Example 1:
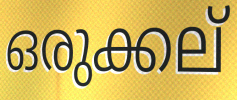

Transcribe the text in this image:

ഒരുക്കല്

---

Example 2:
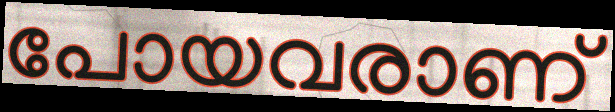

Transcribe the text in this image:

പോയവരാണ്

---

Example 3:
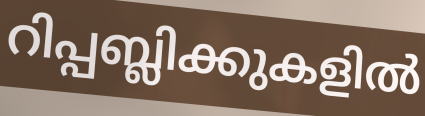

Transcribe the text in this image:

റിപ്പബ്ലിക്കുകളിൽ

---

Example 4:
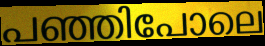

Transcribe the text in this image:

പഞ്ഞിപോലെ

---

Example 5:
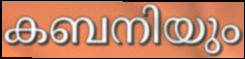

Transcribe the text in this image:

കബനിയും